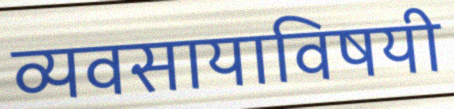
व्यवसायाविषयी